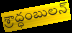
శ్రాద్ధంబులన్